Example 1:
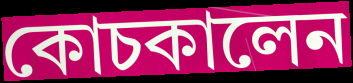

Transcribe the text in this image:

কোচকালেন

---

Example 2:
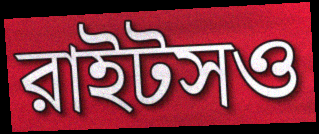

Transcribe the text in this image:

রাইটসও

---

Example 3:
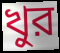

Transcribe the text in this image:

খুর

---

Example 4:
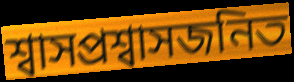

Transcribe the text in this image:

শ্বাসপ্রশ্বাসজনিত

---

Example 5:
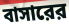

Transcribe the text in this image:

বাসারের